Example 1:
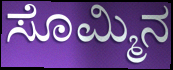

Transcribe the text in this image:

ಸೊಮ್ಮಿನ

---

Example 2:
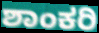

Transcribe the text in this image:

ಶಾಂಕರಿ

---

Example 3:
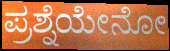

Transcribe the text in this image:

ಪ್ರಶ್ನೆಯೇನೋ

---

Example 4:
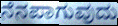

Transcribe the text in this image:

ನೆನಪಾಗುವುದು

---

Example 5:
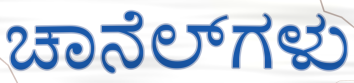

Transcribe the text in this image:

ಚಾನೆಲ್‌ಗಳು